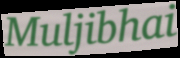
Muljibhai